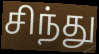
சிந்து